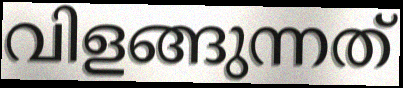
വിളങ്ങുന്നത്